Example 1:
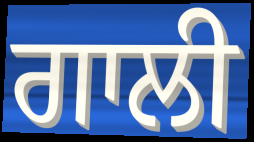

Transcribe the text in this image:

ਗਾਲੀ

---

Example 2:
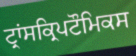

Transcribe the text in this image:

ਟ੍ਰਾਂਸਕ੍ਰਿਪਟੌਮਿਕਸ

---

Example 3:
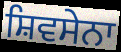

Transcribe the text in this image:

ਸ਼ਿਵਸੇਨਾ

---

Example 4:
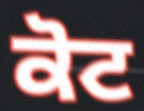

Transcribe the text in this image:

ਕੋਟ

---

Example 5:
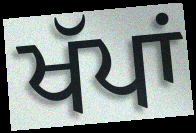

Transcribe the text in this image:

ਖੱਪਾਂ